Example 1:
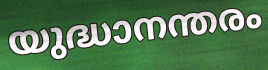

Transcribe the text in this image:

യുദ്ധാനന്തരം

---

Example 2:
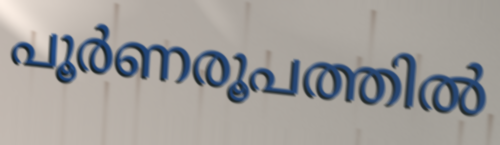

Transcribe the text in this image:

പൂർണരൂപത്തിൽ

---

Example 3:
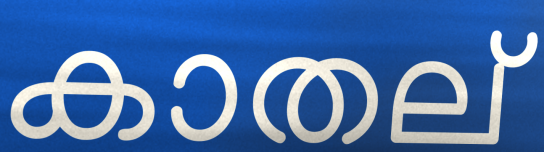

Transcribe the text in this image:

കാതല്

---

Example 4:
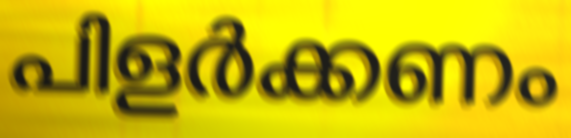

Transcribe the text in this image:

പിളർക്കണം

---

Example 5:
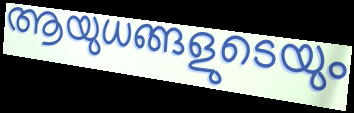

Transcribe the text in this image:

ആയുധങ്ങളുടെയും